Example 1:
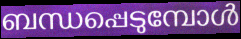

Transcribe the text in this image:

ബന്ധപ്പെടുമ്പോൾ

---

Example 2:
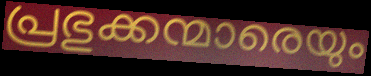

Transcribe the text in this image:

പ്രഭുക്കന്മാരെയും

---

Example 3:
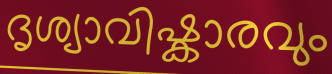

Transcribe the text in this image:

ദൃശ്യാവിഷ്കാരവും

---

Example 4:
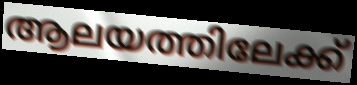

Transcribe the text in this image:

ആലയത്തിലേക്ക്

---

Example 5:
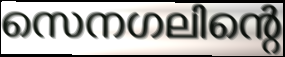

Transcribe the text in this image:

സെനഗലിന്റെ